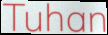
Tuhan